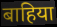
बाहिया